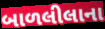
બાળલીલાના